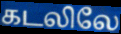
கடலிலே